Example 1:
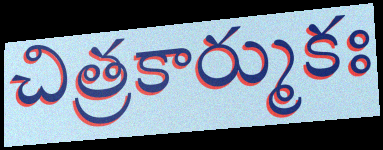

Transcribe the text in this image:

చిత్రకార్ముకః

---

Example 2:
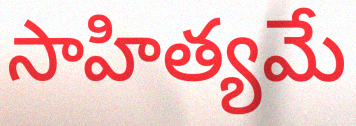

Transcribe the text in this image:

సాహిత్యమే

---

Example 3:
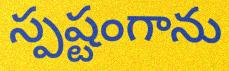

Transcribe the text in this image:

స్పష్టంగాను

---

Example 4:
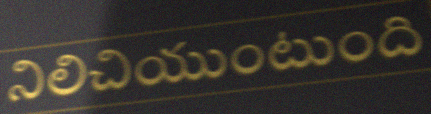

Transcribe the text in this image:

నిలిచియుంటుంది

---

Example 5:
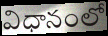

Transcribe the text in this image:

విధానంలో